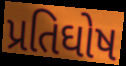
પ્રતિઘોષ